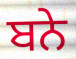
ਬਨੇ